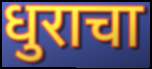
धुराचा